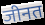
जीनत